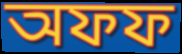
অফফ